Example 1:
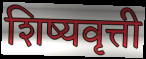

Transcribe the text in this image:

शिष्यवृत्ती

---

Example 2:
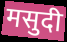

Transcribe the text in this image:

मसुदी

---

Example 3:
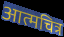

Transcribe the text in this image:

आत्मचित्र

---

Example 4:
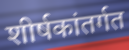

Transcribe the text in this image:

शीर्षकांतर्गत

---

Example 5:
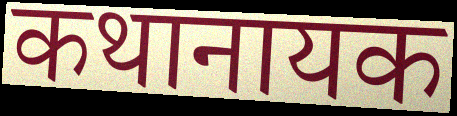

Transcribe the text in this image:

कथानायक